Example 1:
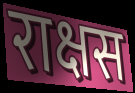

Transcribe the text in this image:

राक्षस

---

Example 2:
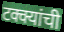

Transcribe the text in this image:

टक्क्यांची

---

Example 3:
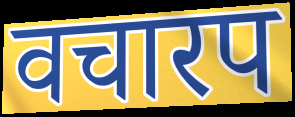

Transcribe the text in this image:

वचारप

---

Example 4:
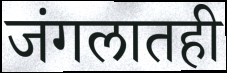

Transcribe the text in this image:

जंगलातही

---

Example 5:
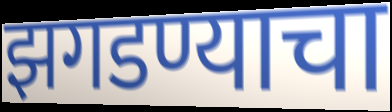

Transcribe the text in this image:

झगडण्याचा